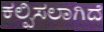
ಕಲ್ಪಿಸಲಾಗಿದೆ